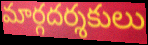
మార్గదర్శకులు